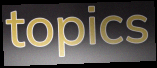
topics